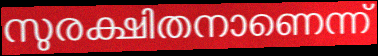
സുരക്ഷിതനാണെന്ന്